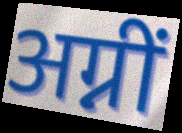
अग्नीं